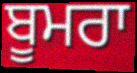
ਬੂਮਰਾ